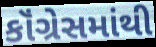
કૉંગ્રેસમાંથી